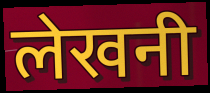
लेखनी